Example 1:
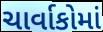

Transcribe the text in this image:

ચાર્વાકોમાં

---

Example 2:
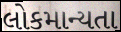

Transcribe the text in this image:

લોકમાન્યતા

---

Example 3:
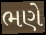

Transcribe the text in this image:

ભણે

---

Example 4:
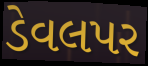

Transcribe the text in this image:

ડેવલપર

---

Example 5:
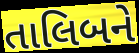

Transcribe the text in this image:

તાલિબને